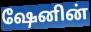
ஷேனின்